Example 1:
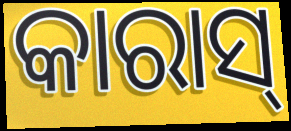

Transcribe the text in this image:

କାରାସ୍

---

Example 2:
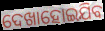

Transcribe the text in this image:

ଦେଖାହୋଇଯିବ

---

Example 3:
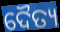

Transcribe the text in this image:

ଦୈତ୍ୟ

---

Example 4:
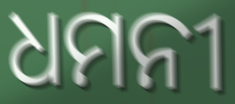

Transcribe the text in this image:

ଧମନୀ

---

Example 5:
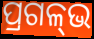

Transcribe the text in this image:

ପ୍ରଗଳ୍‌ଭ